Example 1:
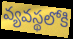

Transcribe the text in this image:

వ్యవస్థలోకి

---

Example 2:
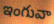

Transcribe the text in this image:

ఇంగువా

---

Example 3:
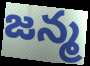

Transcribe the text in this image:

జన్మ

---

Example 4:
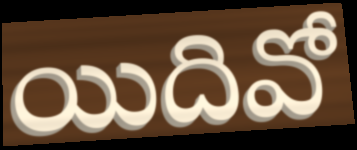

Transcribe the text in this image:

యిదివో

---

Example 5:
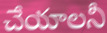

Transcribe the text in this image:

చేయాలనీ